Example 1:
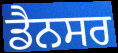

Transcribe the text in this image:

ਡੈਨਸਰ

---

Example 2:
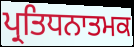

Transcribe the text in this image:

ਪ੍ਰਤਿਧਨਾਤਮਕ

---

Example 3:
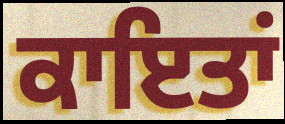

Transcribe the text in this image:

ਕਾਇਤਾਂ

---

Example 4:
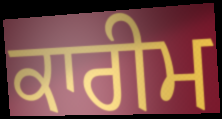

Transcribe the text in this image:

ਕਾਰੀਮ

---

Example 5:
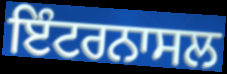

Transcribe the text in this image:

ਇੰਟਰਨਾਸਲ